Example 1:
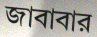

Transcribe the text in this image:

জাবাবার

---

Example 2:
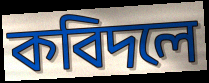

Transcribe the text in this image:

কবিদলে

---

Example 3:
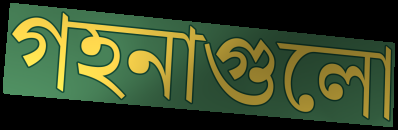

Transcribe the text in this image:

গহনাগুলো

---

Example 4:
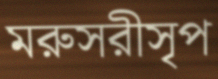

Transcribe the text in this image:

মরুসরীসৃপ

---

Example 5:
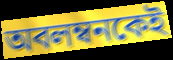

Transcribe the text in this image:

অবলম্বনকেই